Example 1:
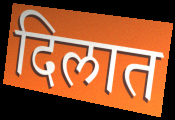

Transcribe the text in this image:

दिलात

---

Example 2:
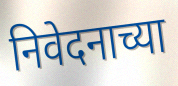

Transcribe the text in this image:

निवेदनाच्या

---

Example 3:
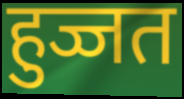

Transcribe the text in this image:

हुज्जत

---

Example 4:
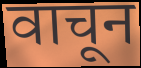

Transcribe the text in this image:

वाचून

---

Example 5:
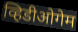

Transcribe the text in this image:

व्हिडीओगेम